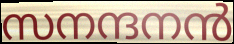
സനന്ദനൻ